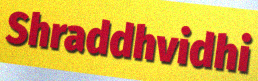
Shraddhvidhi